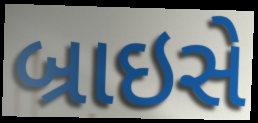
બ્રાઇસે